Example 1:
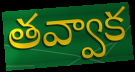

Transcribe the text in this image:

తవ్వాక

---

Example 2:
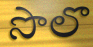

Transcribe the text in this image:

సొలొ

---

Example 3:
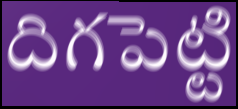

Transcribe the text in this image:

దిగపెట్టి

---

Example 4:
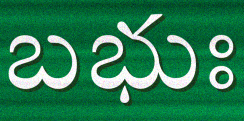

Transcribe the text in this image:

బభుః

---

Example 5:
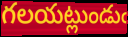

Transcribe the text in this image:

గలయట్లుండుఁ